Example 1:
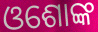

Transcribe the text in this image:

ଓଶୋଙ୍କ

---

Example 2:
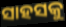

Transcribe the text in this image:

ସାହସକୁ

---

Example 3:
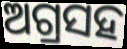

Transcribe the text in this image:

ଅଗ୍ରସହ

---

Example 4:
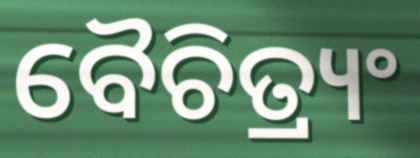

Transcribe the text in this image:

ବୈଚିତ୍ର୍ୟଂ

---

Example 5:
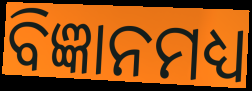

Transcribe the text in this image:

ବିଜ୍ଞାନମଧ୍ୟ